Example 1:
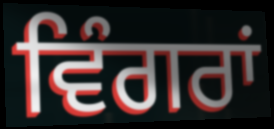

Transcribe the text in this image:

ਵਿੰਗਰਾਂ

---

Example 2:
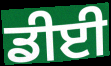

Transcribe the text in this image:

ਡੀਈ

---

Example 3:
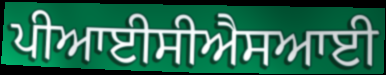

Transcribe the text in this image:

ਪੀਆਈਸੀਐਸਆਈ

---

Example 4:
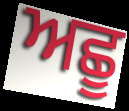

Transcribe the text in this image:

ਅਛੂ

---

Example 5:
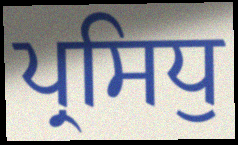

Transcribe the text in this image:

ਪ੍ਰਸਿਧੁ